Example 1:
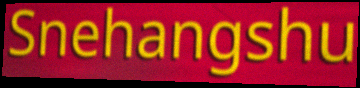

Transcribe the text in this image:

Snehangshu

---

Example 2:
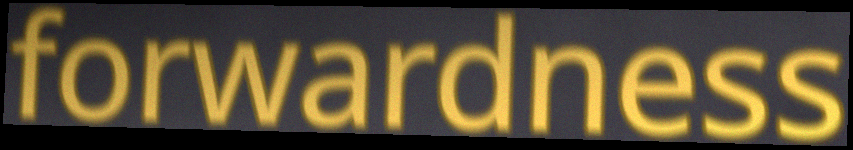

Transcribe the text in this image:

forwardness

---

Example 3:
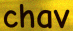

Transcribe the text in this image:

chav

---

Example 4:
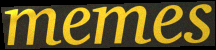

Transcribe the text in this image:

memes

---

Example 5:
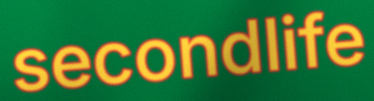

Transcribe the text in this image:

secondlife